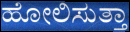
ಹೋಲಿಸುತ್ತಾ